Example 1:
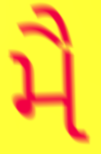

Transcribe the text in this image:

મૈ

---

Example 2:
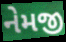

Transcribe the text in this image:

નેમજી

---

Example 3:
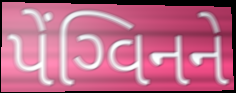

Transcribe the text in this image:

પેંગ્વિનને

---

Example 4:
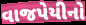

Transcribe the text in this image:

વાજપેયીનો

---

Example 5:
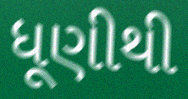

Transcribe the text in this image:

ધૂણીથી